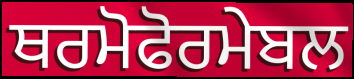
ਥਰਮੋਫੋਰਮੇਬਲ